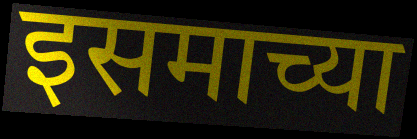
इसमाच्या